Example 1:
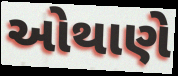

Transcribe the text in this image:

ઓથાણે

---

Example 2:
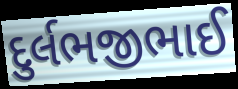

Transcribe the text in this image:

દુર્લભજીભાઈ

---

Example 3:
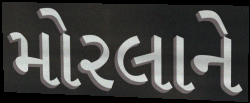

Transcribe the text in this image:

મોરલાને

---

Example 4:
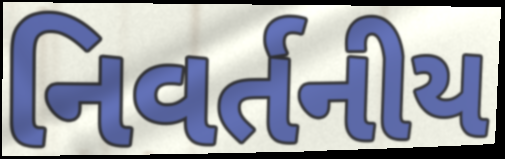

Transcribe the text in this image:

નિવર્તનીય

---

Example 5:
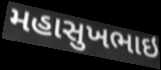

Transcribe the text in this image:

મહાસુખભાઇ